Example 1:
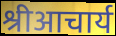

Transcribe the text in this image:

श्रीआचार्य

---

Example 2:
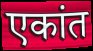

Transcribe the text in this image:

एकांत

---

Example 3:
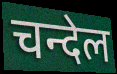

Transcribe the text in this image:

चन्देल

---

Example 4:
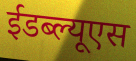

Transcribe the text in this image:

ईडब्ल्यूएस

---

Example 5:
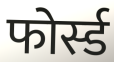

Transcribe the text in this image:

फोर्स्ड